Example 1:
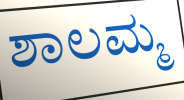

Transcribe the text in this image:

ಶಾಲಮ್ಮ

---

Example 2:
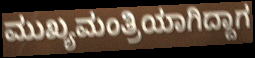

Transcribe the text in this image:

ಮುಖ್ಯಮಂತ್ರಿಯಾಗಿದ್ದಾಗ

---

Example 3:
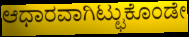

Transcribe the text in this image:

ಆಧಾರವಾಗಿಟ್ಟುಕೊಂಡೇ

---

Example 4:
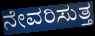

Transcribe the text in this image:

ನೇವರಿಸುತ್ತ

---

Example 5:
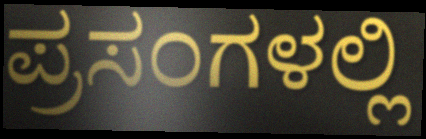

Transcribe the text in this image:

ಪ್ರಸಂಗಳಲ್ಲಿ